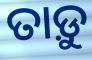
ତାଡ଼ୁ